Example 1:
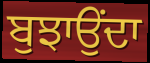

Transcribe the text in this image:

ਬੁਝਾਉਂਦਾ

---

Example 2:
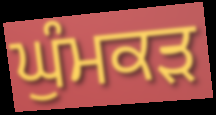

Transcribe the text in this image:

ਘੁੰਮਕੜ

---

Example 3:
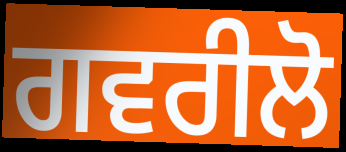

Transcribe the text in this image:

ਗਵਰੀਲੋ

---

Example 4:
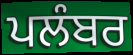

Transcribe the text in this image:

ਪਲੰਬਰ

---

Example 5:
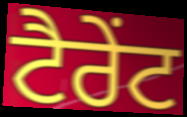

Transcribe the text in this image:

ਟੈਰੇਂਟ